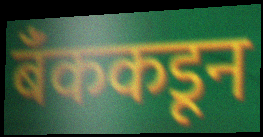
बँककडून